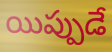
యిప్పుడే